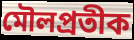
মৌলপ্রতীক